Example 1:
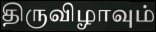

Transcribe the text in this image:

திருவிழாவும்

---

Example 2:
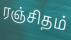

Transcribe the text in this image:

ரஞ்சிதம்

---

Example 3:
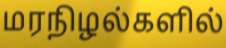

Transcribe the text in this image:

மரநிழல்களில்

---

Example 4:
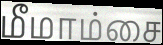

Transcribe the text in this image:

மீமாம்சை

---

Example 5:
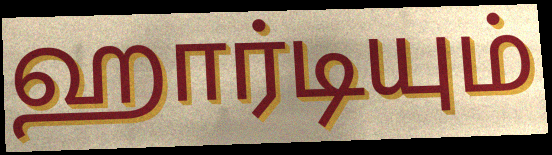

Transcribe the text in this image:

ஹார்டியும்